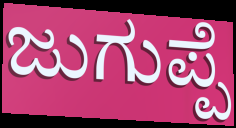
ಜುಗುಪ್ಪೆ